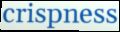
crispness